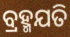
ବ୍ରହ୍ମଯତି